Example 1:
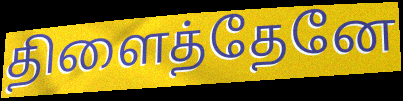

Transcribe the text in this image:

திளைத்தேனே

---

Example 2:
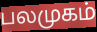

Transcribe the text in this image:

பலமுகம்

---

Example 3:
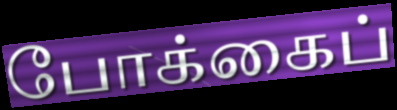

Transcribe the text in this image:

போக்கைப்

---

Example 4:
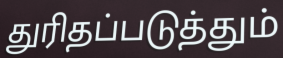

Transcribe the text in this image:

துரிதப்படுத்தும்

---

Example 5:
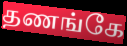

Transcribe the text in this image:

தணங்கே